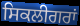
ਸਿਕਲੀਗਰਾਂ